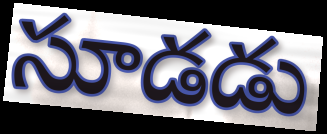
సూడడు